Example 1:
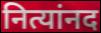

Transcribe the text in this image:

नित्यांनद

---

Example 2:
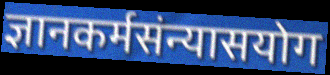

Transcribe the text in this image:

ज्ञानकर्मसंन्यासयोग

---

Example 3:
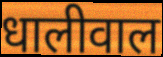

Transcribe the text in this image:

धालीवाल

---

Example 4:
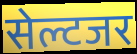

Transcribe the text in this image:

सेल्टजर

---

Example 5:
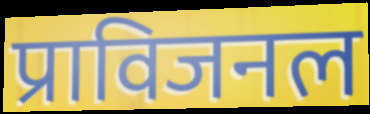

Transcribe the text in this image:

प्राविजनल